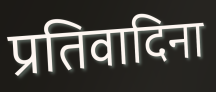
प्रतिवादिना